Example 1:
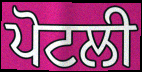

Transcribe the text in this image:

ਪੋਟਲੀ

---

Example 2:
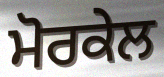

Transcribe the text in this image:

ਮੋਰਕੇਲ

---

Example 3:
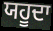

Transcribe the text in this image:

ਯਹੂਦਾ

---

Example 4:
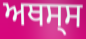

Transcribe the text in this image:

ਅਥਸ੍ਸ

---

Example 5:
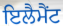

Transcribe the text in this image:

ਇਲੈਮੈਂਟ